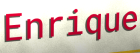
Enrique